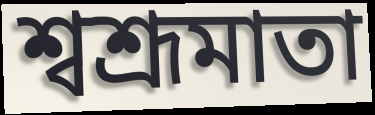
শ্বশ্রূমাতা